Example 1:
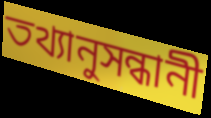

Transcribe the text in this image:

তথ্যানুসন্ধানী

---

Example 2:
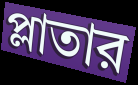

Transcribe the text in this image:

প্লাতার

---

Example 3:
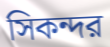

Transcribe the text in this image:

সিকন্দর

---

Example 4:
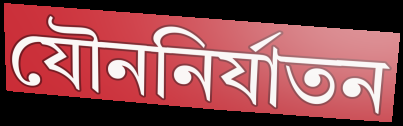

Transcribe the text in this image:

যৌননির্যাতন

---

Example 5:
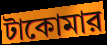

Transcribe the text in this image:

টাকোমার